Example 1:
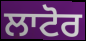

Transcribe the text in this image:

ਲਾਟੋਰ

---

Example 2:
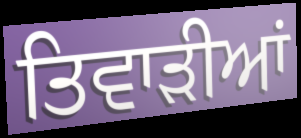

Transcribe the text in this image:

ਤਿਵਾੜੀਆਂ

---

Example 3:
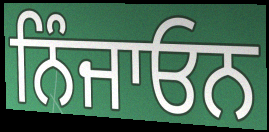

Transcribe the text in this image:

ਨਿੰਜਾਓਨ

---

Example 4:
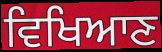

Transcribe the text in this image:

ਵਿਖਿਆਣ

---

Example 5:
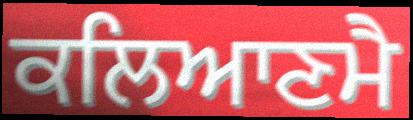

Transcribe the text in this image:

ਕਲਿਆਣਮੈ